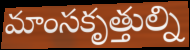
మాంసకృత్తుల్ని